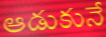
ఆడుకునే